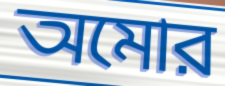
অমোর